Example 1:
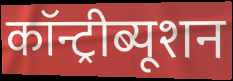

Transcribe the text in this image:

कॉन्ट्रीब्यूशन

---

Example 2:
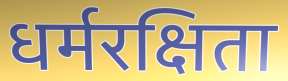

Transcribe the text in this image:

धर्मरक्षिता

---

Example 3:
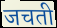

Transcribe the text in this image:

जचती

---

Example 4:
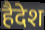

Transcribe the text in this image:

हैदेश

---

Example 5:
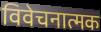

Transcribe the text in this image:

विवेचनात्मक